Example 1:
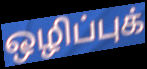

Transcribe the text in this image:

ஒழிப்புக்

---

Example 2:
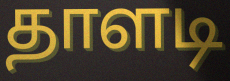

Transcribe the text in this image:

தாளடி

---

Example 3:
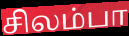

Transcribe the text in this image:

சிலம்பா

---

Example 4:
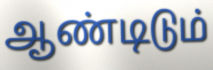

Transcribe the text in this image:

ஆண்டிடும்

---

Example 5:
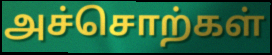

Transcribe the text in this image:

அச்சொற்கள்